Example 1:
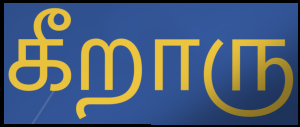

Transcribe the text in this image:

கீறாரு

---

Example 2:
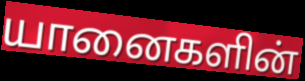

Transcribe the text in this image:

யானைகளின்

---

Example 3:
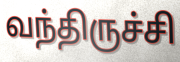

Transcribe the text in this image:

வந்திருச்சி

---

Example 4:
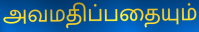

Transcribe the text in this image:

அவமதிப்பதையும்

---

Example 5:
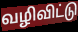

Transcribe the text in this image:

வழிவிட்டு